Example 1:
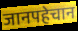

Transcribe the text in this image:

जानपहेचान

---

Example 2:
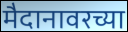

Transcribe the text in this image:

मैदानावरच्या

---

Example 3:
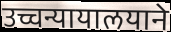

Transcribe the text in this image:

उच्चन्यायालयाने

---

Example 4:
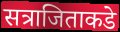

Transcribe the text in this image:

सत्राजिताकडे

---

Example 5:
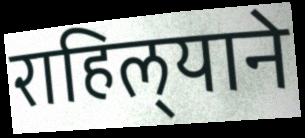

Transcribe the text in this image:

राहिल्याने